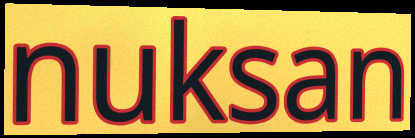
nuksan